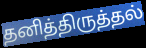
தனித்திருத்தல்